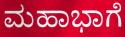
ಮಹಾಭಾಗೆ